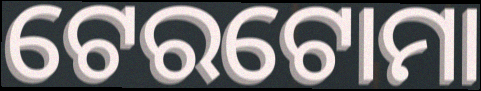
ଟେରଟୋମା